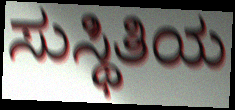
ಸುಸ್ಥಿತಿಯ